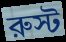
রুস্ট